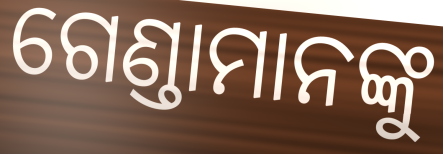
ଗେଣ୍ଡାମାନଙ୍କୁ